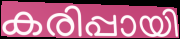
കരിപ്പായി